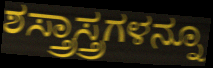
ಶಸ್ತ್ರಾಸ್ತ್ರಗಳನ್ನೂ